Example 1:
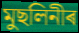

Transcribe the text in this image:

মুছলিনীৰ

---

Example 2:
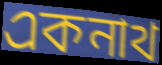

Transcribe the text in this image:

একনাথ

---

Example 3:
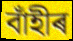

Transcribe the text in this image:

বাঁহীৰ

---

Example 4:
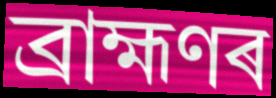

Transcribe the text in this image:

ব্ৰাহ্মণৰ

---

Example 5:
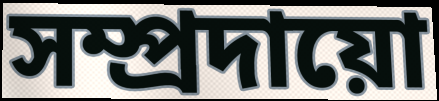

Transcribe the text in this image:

সম্প্ৰদায়ো